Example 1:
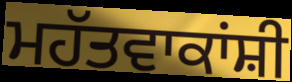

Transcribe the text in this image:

ਮਹੱਤਵਾਕਾਂਸ਼ੀ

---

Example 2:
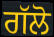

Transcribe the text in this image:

ਗੱਲੋ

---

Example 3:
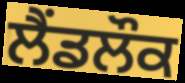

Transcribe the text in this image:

ਲੈਂਡਲੌਕ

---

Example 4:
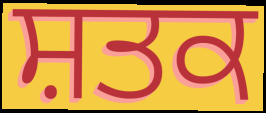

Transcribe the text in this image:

ਸ਼ਤਕ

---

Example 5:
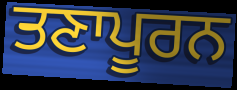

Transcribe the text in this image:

ਤਣਾਪੂਰਨ